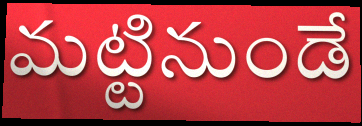
మట్టినుండే